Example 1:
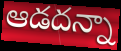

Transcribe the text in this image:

ఆడదన్నా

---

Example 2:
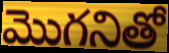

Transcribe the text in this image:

మొగనితో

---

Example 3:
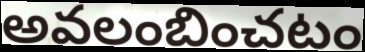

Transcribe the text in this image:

అవలంబించటం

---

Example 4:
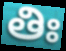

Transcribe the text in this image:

తిః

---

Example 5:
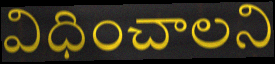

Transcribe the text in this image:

విధించాలని